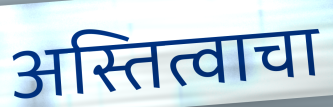
अस्तित्वाचा